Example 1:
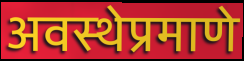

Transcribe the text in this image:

अवस्थेप्रमाणे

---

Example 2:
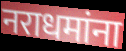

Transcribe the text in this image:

नराधमांना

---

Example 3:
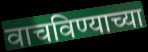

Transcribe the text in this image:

वाचविण्याच्या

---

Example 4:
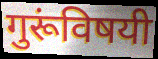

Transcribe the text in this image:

गुरूंविषयी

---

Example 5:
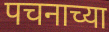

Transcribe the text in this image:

पचनाच्या